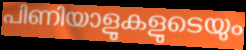
പിണിയാളുകളുടെയും